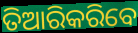
ତିଆରିକରିବେ